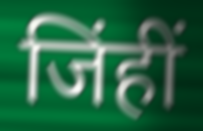
जिंहीं